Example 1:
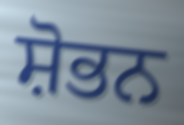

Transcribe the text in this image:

ਸ਼ੋਭਨ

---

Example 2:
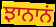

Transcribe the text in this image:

ਝਾਨਾਨਂ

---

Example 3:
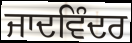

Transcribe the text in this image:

ਜਾਦਵਿੰਦਰ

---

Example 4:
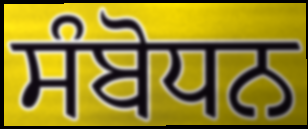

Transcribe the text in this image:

ਸੰਬੋਧਨ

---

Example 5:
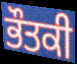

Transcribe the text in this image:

ਭੌਤਕੀ